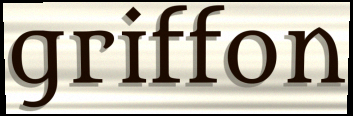
griffon